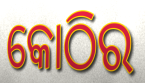
କୋଠିର